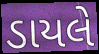
ડાયલે